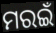
ମରଇଁ